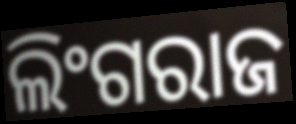
ଲିଂଗରାଜ